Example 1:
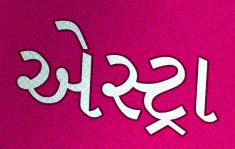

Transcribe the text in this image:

એસ્ટ્રા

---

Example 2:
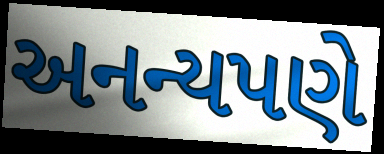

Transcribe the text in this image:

અનન્યપણે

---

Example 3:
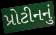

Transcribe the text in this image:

પ્રોટીનનું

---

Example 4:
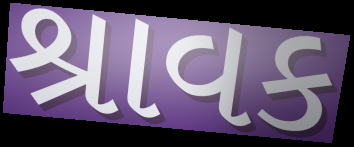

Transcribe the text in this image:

શ્રાવક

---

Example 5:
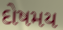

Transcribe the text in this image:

દોષમય